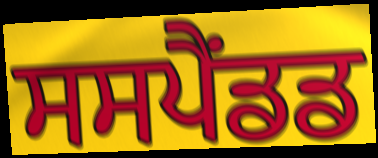
ਸਸਪੈਂਡਡ